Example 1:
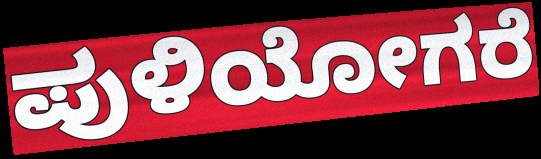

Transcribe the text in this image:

ಪುಳಿಯೋಗರೆ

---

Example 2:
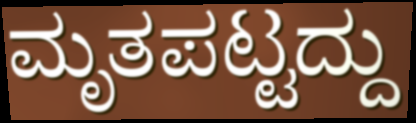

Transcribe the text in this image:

ಮೃತಪಟ್ಟದ್ದು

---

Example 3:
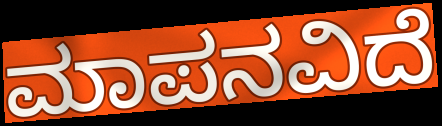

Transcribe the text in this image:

ಮಾಪನವಿದೆ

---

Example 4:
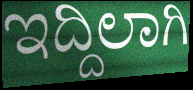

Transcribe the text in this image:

ಇದ್ದಿಲಾಗಿ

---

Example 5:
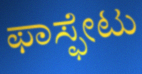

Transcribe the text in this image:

ಫಾಸ್ಫೇಟು